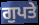
ਗੁਪਤੇ